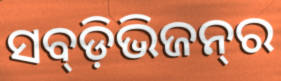
ସବ୍‍ଡ଼ିଭିଜନ୍‍ର